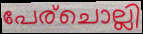
പേര്ചൊല്ലി